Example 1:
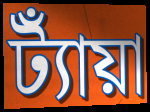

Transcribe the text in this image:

ট্যাঁয়া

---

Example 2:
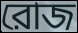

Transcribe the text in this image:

রোজ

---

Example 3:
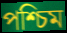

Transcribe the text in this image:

পশ্চিম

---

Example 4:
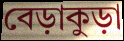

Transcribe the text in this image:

বেড়াকুড়া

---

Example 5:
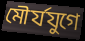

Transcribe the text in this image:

মৌর্যযুগে